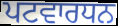
ਪਟਵਾਰਧਨ